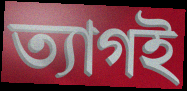
ত্যাগই